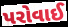
પરોવાઈ